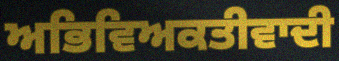
ਅਭਿਵਿਅਕਤੀਵਾਦੀ